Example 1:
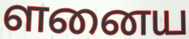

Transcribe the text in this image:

ளனைய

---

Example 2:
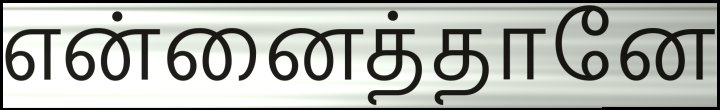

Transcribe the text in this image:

என்னைத்தானே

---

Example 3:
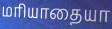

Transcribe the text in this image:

மரியாதையா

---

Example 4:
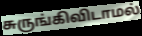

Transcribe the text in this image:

சுருங்கிவிடாமல்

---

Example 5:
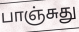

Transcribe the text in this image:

பாஞ்சுது